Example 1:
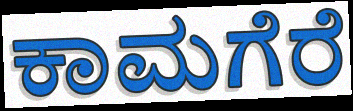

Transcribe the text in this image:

ಕಾಮಗೆರೆ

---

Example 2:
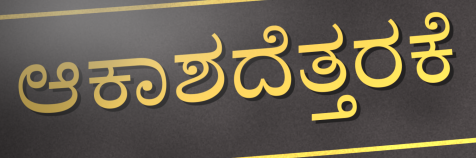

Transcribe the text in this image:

ಆಕಾಶದೆತ್ತರಕೆ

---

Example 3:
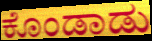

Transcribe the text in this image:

ಕೊಂಡಾಡು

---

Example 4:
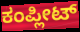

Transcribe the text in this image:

ಕಂಪ್ಲೀಟ್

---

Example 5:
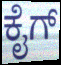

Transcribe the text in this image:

ಕೈಗ್